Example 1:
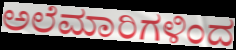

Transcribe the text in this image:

ಅಲೆಮಾರಿಗಳಿಂದ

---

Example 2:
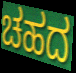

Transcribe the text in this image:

ಚಹದ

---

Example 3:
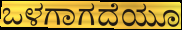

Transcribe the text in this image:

ಒಳಗಾಗದೆಯೂ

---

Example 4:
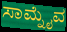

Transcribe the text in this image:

ಸಾಮ್ನೈವ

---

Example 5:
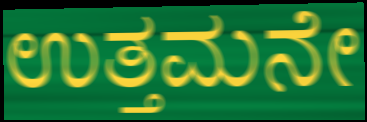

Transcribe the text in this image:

ಉತ್ತಮನೇ